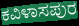
ಕವಿಳಾಸಪುರ